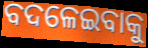
ବଦଳେଇବାକୁ